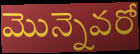
మొన్నెవరో